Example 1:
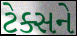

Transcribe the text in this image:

ટેક્સને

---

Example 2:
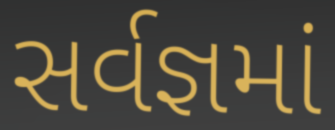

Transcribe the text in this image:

સર્વજ્ઞમાં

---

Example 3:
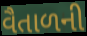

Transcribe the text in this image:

વૈતાળની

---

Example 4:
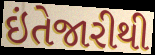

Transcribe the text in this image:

ઇંતેજારીથી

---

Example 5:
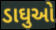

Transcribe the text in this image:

ડાઘુઓ